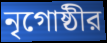
নৃগোষ্ঠীর